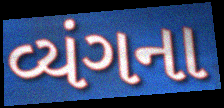
વ્યંગના